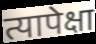
त्यापेक्षा